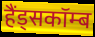
हैंड्सकॉम्ब